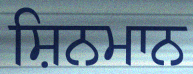
ਸ਼ਿਨਮਾਨ